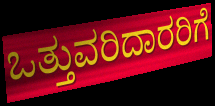
ಒತ್ತುವರಿದಾರರಿಗೆ